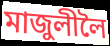
মাজুলীলৈ